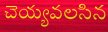
చెయ్యవలసిన